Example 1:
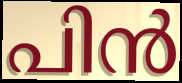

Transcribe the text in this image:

പിൻ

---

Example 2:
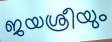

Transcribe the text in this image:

ജയശ്രീയും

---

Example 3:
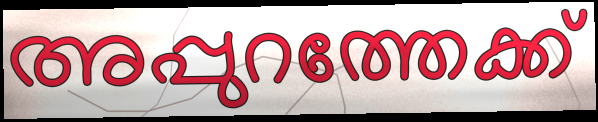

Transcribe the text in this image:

അപ്പുറത്തേക്ക്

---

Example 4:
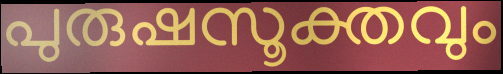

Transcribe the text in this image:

പുരുഷസൂക്തവും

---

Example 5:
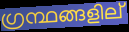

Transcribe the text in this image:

ഗ്രന്ഥങ്ങളില്